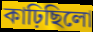
কাঢ়িছিলো